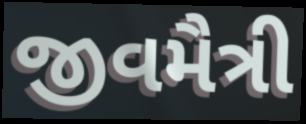
જીવમૈત્રી